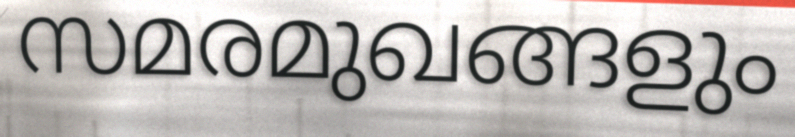
സമരമുഖങ്ങളും